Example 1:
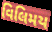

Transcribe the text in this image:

વિલિમય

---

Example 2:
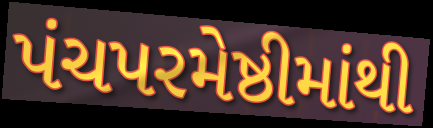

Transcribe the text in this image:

પંચપરમેષ્ઠીમાંથી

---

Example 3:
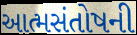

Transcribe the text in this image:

આત્મસંતોષની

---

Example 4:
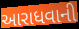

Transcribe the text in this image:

આરાધવાની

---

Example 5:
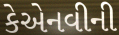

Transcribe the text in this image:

કેએનવીની